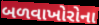
બળવાખોરોના